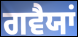
ਗਵੈਯਾਂ